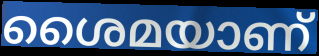
ശൈമയാണ്